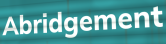
Abridgement